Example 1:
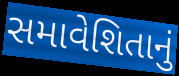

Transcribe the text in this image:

સમાવેશિતાનું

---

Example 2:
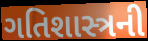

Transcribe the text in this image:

ગતિશાસ્ત્રની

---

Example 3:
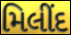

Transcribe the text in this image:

મિલીંદ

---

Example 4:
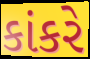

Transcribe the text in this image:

કાંકરે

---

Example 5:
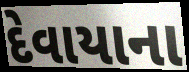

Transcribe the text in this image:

દેવાયાના